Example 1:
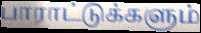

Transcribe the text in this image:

பாராட்டுக்களும்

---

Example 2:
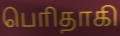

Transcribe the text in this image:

பெரிதாகி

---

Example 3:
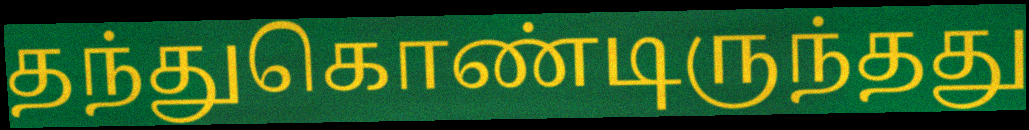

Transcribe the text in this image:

தந்துகொண்டிருந்தது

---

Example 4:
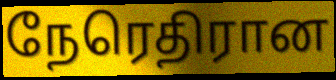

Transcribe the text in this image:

நேரெதிரான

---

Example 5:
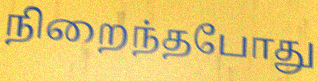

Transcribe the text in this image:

நிறைந்தபோது